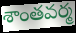
శాంతవర్మ